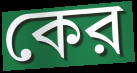
কের